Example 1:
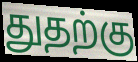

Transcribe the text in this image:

துதற்கு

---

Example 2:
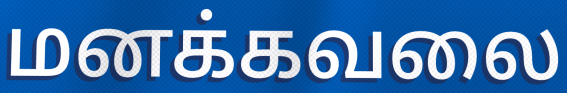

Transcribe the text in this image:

மனக்கவலை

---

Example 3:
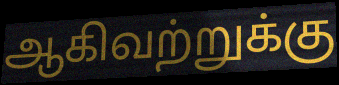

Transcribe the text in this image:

ஆகிவற்றுக்கு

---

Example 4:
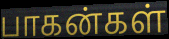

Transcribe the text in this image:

பாகன்கள்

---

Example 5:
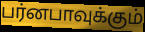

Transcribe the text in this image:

பர்னபாவுக்கும்